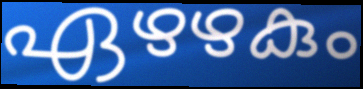
ഏഴഴകും